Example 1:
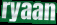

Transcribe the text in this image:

ryaan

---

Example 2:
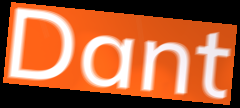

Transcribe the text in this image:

Dant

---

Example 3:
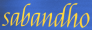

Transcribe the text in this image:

sabandho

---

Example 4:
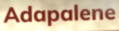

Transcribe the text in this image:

Adapalene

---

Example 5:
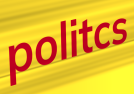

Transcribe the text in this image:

politcs